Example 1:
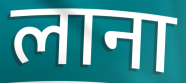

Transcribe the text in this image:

लाना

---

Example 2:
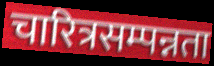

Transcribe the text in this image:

चारित्रसम्पन्नता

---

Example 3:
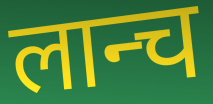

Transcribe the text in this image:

लान्‍च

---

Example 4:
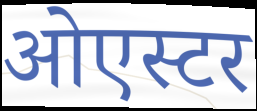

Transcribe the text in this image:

ओएस्टर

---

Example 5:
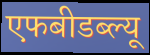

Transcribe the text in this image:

एफबीडब्ल्यू